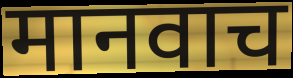
मानवाच